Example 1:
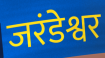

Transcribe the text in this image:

जरंडेश्वर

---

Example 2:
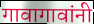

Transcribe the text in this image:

गावागावांनी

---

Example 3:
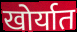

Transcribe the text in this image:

खोर्यात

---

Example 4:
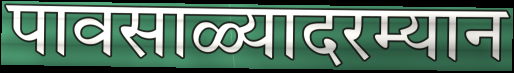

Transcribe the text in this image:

पावसाळ्यादरम्यान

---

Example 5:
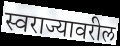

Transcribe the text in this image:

स्वराज्यावरील